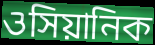
ওসিয়ানিক